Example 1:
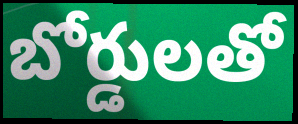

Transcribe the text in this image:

బోర్డులతో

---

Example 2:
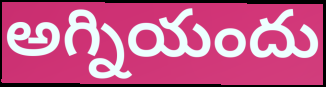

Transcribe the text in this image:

అగ్నియందు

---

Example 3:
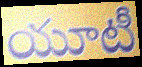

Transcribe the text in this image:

యూటీ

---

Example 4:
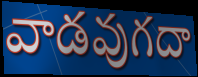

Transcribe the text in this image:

వాడవుగదా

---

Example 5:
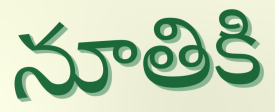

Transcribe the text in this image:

నూతికి